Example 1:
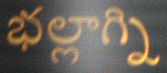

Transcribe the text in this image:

భల్లాగ్ని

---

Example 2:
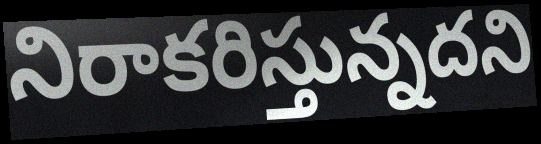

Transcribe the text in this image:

నిరాకరిస్తున్నదని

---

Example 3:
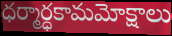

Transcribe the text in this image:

ధర్మార్ధకామమోక్షాలు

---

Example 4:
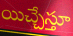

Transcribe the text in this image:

యిచ్చేస్తూ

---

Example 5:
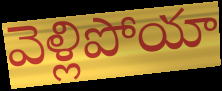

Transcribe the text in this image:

వెళ్లిపోయా